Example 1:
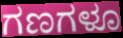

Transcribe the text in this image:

ಗಣಗಳೂ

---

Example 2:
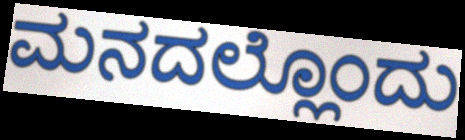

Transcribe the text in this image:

ಮನದಲ್ಲೊಂದು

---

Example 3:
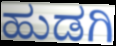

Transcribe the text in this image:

ಹುಡಗಿ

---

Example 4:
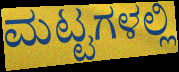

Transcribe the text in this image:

ಮಟ್ಟಗಳಲ್ಲಿ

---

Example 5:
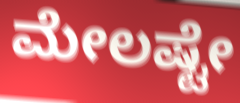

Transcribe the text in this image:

ಮೇಲಷ್ಟೇ